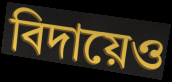
বিদায়েও